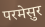
परमेसुर